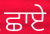
ਛਾਏ